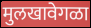
मुलखावेगळा